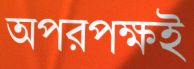
অপরপক্ষই